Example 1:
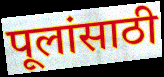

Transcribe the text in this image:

पूलांसाठी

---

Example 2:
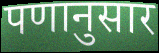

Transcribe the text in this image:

पणानुसार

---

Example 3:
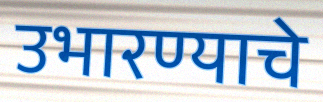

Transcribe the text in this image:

उभारण्याचे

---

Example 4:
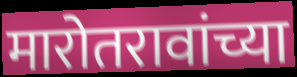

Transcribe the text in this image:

मारोतरावांच्या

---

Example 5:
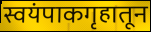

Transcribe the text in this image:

स्वयंपाकगृहातून